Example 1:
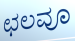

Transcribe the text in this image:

ಛಲವೂ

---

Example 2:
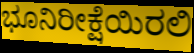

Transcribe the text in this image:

ಭೂನಿರೀಕ್ಷೆಯಿರಲಿ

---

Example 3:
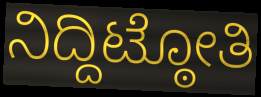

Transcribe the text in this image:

ನಿದ್ದಿಟ್ಠೋತಿ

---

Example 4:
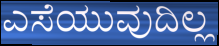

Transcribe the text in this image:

ಎಸೆಯುವುದಿಲ್ಲ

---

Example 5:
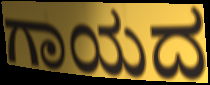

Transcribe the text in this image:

ಗಾಯದ